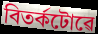
বিতৰ্কটোৱে